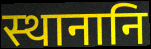
स्थानानि